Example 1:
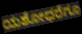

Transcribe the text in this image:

ಯಶೋಧರೆಗೂ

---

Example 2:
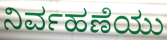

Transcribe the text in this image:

ನಿರ್ವಹಣೆಯು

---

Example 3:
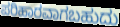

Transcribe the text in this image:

ಪರಿಹಾರವಾಗಬಹುದು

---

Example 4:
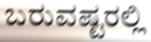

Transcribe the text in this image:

ಬರುವಷ್ಟರಲ್ಲಿ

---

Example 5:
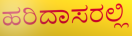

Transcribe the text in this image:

ಹರಿದಾಸರಲ್ಲಿ